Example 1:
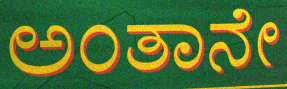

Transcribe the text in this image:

ಅಂತಾನೇ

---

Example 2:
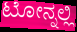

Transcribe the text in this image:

ಟೋನ್ನಲ್ಲಿ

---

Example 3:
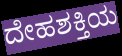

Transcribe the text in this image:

ದೇಹಶಕ್ತಿಯ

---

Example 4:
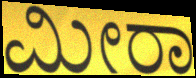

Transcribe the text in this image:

ಮೀರಾ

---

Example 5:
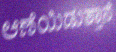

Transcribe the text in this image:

ಆಣೆಯಿಡುತ್ತಾನೆ